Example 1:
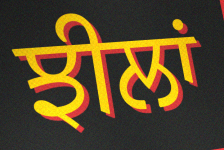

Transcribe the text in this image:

ਝੀਲਾਂ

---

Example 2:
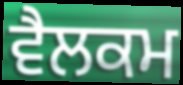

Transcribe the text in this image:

ਵੈਲਕਮ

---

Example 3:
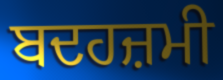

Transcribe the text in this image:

ਬਦਹਜ਼ਮੀ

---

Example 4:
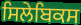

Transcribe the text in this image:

ਸਿਲੇਬਿਕਸ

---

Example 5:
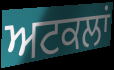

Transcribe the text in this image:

ਅਟਕਲਾਂ